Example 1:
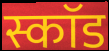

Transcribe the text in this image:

स्कॉड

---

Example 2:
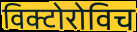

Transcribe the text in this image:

विक्टोरोविच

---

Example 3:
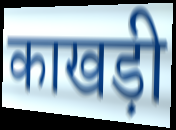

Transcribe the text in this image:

काखड़ी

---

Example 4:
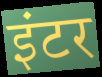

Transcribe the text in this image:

इंटर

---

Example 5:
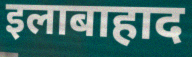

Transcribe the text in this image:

इलाबाहाद